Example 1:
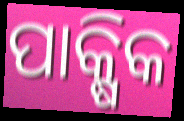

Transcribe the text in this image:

ପାକ୍ଷିକ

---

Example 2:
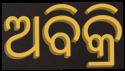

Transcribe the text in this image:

ଅବିକ୍ରି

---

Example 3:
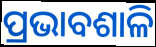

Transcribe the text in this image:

ପ୍ରଭାବଶାଳି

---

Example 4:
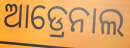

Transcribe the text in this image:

ଆଡ୍ରେନାଲ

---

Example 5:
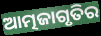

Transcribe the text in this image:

ଆତ୍ମଜାଗୃତିର